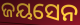
ଜୟସେନ